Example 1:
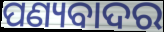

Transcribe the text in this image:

ପଣ୍ୟବାଦର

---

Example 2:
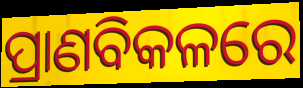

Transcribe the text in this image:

ପ୍ରାଣବିକଳରେ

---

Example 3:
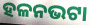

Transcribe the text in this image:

ହଳନଭଟା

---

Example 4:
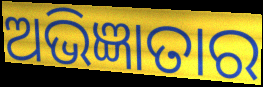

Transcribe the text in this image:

ଅଭିଜ୍ଞାତାର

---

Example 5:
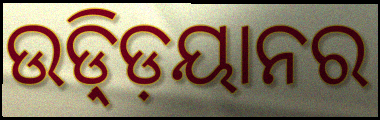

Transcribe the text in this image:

ଉଡ଼୍ଡ଼ିୟାନର